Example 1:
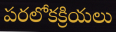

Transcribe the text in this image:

పరలోకక్రియలు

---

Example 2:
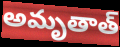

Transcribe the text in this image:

అమృతాత్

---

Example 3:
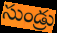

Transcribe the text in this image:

సుండ్రు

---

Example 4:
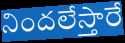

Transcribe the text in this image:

నిందలేస్తారే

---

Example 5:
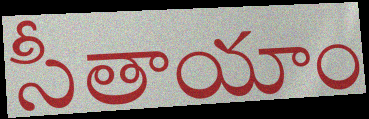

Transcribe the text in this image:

సీతాయాం